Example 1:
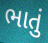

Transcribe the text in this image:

ભાતું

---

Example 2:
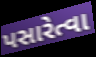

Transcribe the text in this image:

પસારેત્વા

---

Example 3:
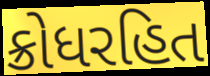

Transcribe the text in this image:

ક્રોધરહિત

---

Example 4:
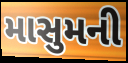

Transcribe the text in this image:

માસુમની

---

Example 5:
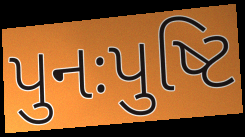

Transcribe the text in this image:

પુનઃપુષ્ટિ